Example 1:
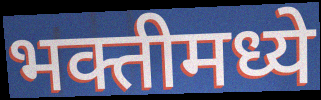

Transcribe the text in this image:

भक्तीमध्ये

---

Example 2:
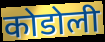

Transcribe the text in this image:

कोडोली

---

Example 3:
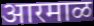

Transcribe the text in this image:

आरमाळ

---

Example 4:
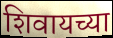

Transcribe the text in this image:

शिवायच्या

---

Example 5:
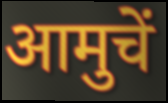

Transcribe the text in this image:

आमुचें